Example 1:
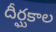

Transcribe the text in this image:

దీర్ఘకాల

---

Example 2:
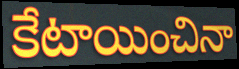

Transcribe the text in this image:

కేటాయించినా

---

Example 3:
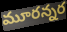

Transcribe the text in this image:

మూరన్నర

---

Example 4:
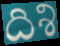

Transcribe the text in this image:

దిశి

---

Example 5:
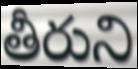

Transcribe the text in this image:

తీరుని